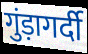
गुंड़ागर्दी